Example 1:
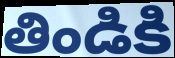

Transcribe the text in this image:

తిండికి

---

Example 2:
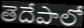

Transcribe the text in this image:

తెదేపాలో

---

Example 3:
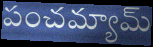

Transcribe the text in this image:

పంచమ్యామ్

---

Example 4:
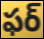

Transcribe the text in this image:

ఫర్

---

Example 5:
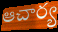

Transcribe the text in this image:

ఆచార్య